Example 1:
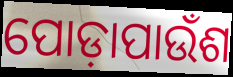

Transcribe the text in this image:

ପୋଡ଼ାପାଉଁଶ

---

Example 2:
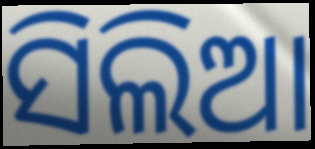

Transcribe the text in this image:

ସିଲିଆ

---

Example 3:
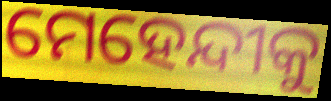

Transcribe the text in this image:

ମେହେନ୍ଦୀକୁ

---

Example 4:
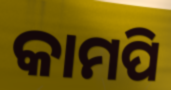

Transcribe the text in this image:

କାମପି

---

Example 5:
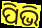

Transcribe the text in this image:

ପିଭି